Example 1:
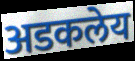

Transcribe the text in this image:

अडकलेय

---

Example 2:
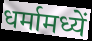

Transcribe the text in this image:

धर्मामध्यें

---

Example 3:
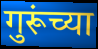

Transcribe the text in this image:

गुरूंच्या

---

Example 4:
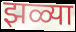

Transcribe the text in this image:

झळ्या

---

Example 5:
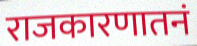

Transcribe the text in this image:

राजकारणातनं